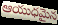
ఆయుధమైన